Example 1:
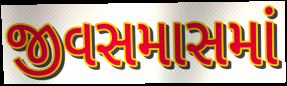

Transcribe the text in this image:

જીવસમાસમાં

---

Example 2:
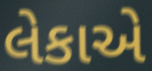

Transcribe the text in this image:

લેકાએ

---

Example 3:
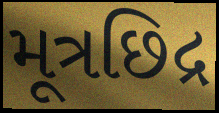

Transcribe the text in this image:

મૂત્રછિદ્ર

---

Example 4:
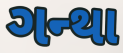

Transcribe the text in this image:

ગન્થા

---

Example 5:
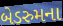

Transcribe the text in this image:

બેડરુમના